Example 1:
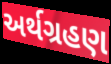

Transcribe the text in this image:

અર્થગ્રહણ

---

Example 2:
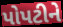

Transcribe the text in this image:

પોપટીને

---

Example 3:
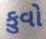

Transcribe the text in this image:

કુવો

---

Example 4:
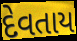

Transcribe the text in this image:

દેવતાય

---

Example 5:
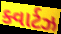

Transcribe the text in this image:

ક્વાર્ટઝ